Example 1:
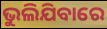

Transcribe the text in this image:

ଭୁଲିଯିବାରେ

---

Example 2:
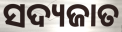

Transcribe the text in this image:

ସଦ୍ୟଜାତ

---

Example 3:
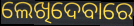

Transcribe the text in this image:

ଲେଖିଦେବାରେ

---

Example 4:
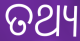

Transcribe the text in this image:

ତଥ୍ୟ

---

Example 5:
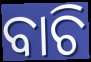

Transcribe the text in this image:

ବାଚି